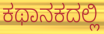
ಕಥಾನಕದಲ್ಲಿ